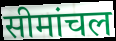
सीमांचल